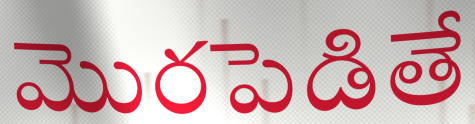
మొరపెడితే